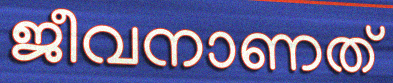
ജീവനാണത്